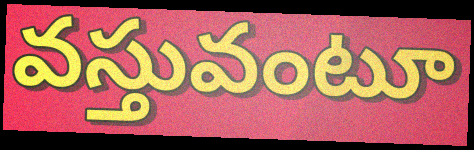
వస్తువంటూ